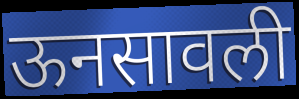
ऊनसावली